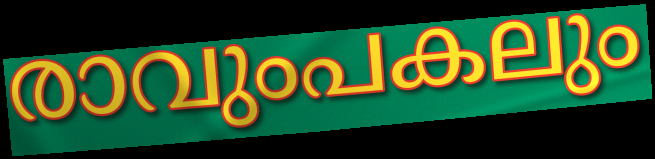
രാവുംപകലും